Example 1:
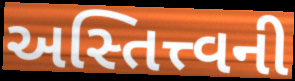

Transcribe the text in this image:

અસ્તિત્ત્વની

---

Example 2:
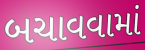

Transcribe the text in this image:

બચાવવામાં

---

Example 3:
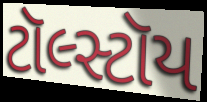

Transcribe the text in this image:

ટૉલ્સ્ટૉય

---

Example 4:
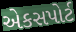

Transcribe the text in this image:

એકસપોર્ટ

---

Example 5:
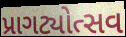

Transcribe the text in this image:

પ્રાગટ્યોત્સવ